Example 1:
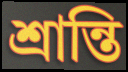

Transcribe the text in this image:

শ্রান্তি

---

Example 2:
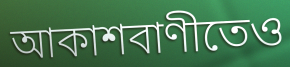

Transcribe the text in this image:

আকাশবাণীতেও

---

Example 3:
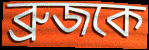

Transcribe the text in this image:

ব্রুজকে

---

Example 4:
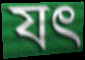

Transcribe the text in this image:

যৎ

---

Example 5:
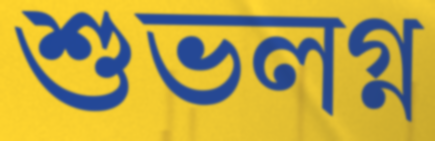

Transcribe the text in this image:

শুভলগ্ন